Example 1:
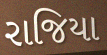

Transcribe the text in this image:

રાજિયા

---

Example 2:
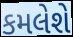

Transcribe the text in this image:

કમલેશે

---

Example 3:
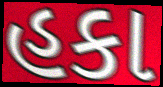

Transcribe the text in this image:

હકા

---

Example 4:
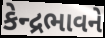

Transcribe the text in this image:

કેન્દ્રભાવને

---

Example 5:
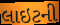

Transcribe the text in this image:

લાઇટની